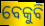
ବେକୁବି